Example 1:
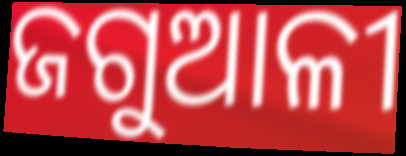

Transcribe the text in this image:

ଜଗୁଆଳୀ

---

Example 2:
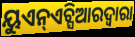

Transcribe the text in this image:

ୟୁଏନ୍ଏଚ୍ସିଆରଦ୍ୱାରା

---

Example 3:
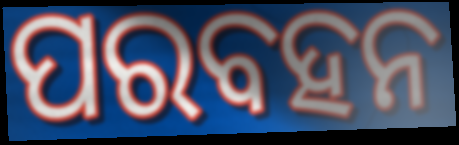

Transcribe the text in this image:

ପରବହନ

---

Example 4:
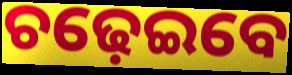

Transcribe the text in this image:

ଚଢ଼େଇବେ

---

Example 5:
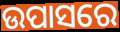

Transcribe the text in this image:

ଉପାସରେ